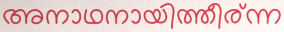
അനാഥനായിത്തീര്ന്ന